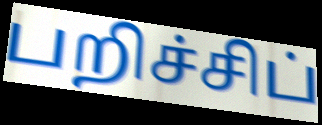
பறிச்சிப்